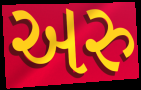
અરુ